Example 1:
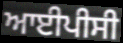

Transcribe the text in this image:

ਆਈਪੀਸੀ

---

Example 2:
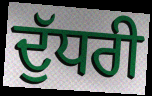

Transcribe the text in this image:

ਦੁੱਧਰੀ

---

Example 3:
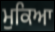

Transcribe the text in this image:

ਮੁਕਿਆ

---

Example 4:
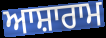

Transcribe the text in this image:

ਆਸ਼ਾਰਾਮ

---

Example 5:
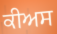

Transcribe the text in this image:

ਕੀਅਸ